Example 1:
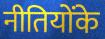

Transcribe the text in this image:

नीतियोंके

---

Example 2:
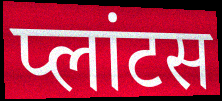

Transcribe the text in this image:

प्लांटस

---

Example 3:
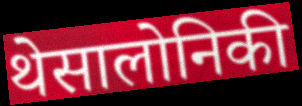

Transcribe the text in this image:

थेसालोनिकी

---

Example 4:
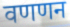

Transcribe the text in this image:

वणणन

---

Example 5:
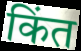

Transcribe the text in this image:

किंत